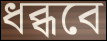
ধব্ধবে